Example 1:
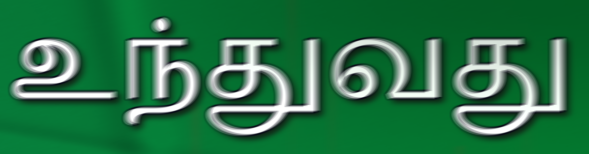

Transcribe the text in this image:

உந்துவது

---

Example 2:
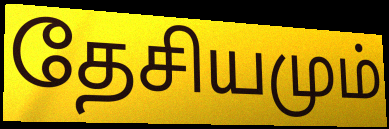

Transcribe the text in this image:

தேசியமும்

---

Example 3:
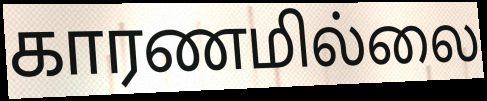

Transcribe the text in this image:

காரணமில்லை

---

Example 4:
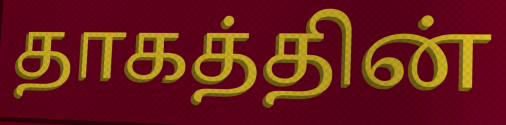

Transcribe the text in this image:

தாகத்தின்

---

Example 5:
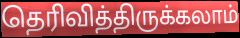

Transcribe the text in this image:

தெரிவித்திருக்கலாம்